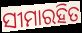
ସୀମାରହିତ